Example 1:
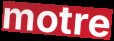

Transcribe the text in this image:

motre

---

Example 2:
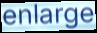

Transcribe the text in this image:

enlarge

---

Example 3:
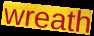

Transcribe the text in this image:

wreath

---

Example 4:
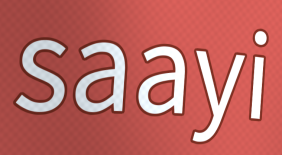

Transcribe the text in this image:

saayi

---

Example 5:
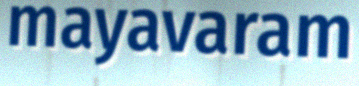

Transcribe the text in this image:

mayavaram